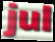
jul